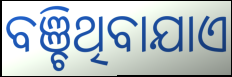
ବଞ୍ଚିଥିବାଯାଏ